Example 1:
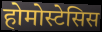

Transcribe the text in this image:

होमोस्टेसिस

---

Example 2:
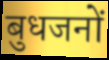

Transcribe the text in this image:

बुधजनों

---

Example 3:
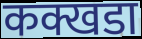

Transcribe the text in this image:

कक्खडा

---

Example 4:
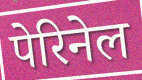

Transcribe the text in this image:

पेरिनेल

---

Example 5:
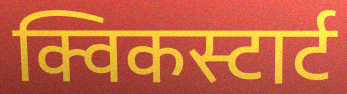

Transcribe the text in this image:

क्विकस्टार्ट